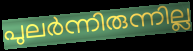
പുലർന്നിരുന്നില്ല